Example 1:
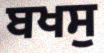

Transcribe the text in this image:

ਬਖਸੁ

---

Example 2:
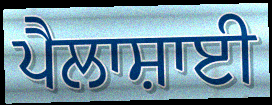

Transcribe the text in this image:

ਪੈਲਾਸ਼ਾਈ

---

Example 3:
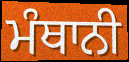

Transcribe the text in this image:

ਮੰਥਾਨੀ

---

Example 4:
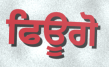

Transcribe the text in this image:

ਫਿਊਗੋ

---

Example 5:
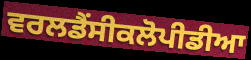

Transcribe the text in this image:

ਵਰਲਡੈਂਸੀਕਲੋਪੀਡੀਆ